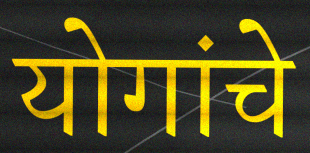
योगांचे